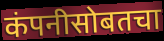
कंपनीसोबतचा